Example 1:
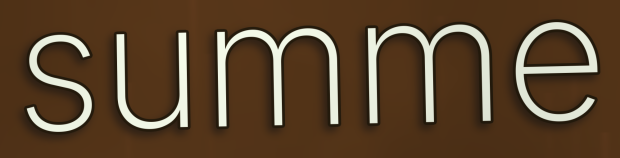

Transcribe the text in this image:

summe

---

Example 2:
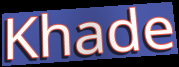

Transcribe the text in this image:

Khade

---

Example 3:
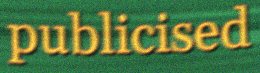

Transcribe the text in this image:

publicised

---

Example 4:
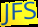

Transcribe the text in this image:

JFS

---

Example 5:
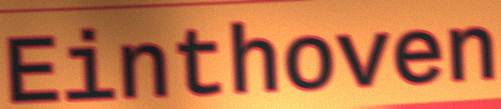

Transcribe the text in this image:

Einthoven